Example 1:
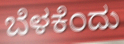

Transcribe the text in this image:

ಬೆಳಕೆಂದು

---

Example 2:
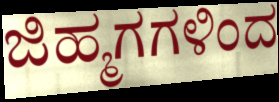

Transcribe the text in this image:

ಜಿಹ್ಮಗಗಳಿಂದ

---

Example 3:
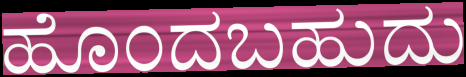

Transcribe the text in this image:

ಹೊಂದಬಹುದು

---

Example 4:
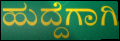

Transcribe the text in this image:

ಹುದ್ದೆಗಾಗಿ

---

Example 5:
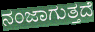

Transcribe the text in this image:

ನಂಜಾಗುತ್ತದೆ